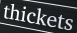
thickets